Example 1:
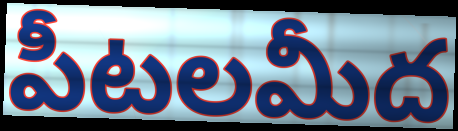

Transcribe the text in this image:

పీటలమీద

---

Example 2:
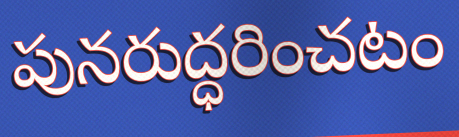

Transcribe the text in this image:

పునరుద్ధరించటం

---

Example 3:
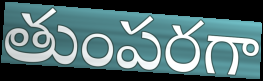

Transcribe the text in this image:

తుంపరగా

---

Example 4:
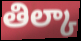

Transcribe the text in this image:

తిల్కా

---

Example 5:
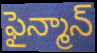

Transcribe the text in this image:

ఫైన్మాన్